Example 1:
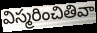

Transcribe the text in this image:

విస్మరించితివా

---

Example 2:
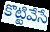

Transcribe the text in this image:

కొట్టివేసే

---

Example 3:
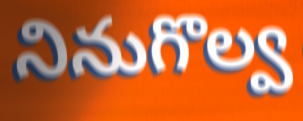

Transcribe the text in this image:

నినుగొల్వ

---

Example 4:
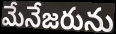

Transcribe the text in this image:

మేనేజరును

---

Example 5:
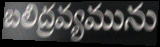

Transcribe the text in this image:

బలిద్రవ్యమును